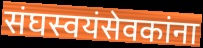
संघस्वयंसेवकांना